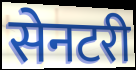
सेनटरी